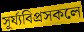
সূৰ্য্যবিপ্ৰসকলে